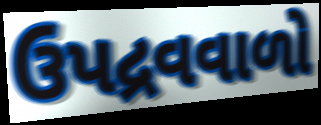
ઉપદ્રવવાળો